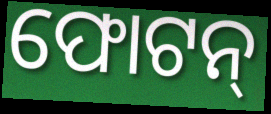
ଫୋଟନ୍